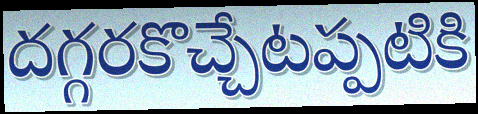
దగ్గరకొచ్చేటప్పటికి